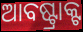
ଆବଷ୍ଟ୍ରାକ୍ଟ